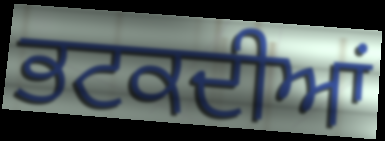
ਭਟਕਦੀਆਂ